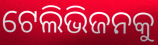
ଟେଲିଭିଜନକୁ